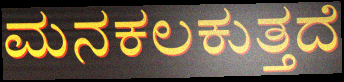
ಮನಕಲಕುತ್ತದೆ